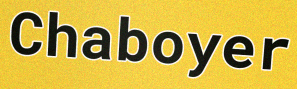
Chaboyer